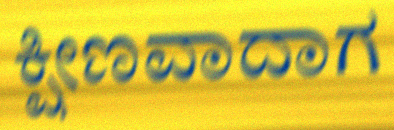
ಕ್ಷೀಣವಾದಾಗ